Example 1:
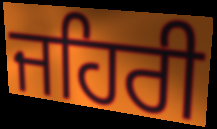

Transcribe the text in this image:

ਜਹਿਰੀ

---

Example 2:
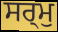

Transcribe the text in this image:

ਸਰ੍ਮੁ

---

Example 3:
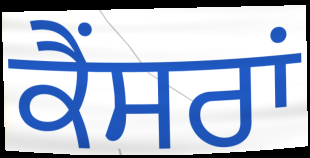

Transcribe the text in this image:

ਕੈਂਸਰਾਂ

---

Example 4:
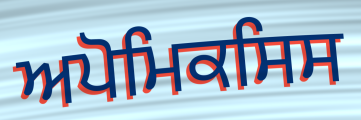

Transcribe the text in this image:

ਅਪੋਮਿਕਸਿਸ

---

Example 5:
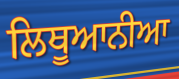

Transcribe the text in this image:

ਲਿਥੂਆਨੀਆ